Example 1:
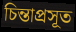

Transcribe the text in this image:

চিন্তাপ্রসূত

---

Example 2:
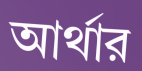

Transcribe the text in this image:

আর্থার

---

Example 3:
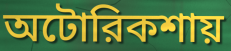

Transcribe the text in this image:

অটোরিকশায়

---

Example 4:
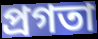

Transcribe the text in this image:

প্রগতা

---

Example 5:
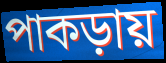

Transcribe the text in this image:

পাকড়ায়